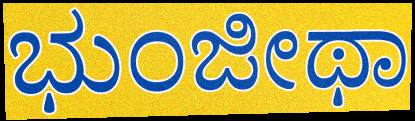
ಭುಂಜೀಥಾ